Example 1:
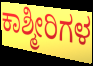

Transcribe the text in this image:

ಕಾಶ್ಮೀರಿಗಳ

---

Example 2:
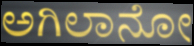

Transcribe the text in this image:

ಅಗಿಲಾನೋ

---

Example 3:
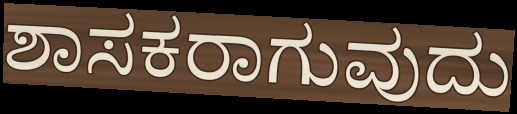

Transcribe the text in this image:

ಶಾಸಕರಾಗುವುದು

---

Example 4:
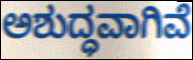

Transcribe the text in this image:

ಅಶುದ್ಧವಾಗಿವೆ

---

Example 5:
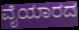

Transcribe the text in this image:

ವೈಯಾರದ